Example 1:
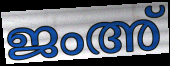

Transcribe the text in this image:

ജംഅ്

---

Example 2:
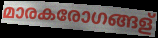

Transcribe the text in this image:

മാരകരോഗങ്ങള്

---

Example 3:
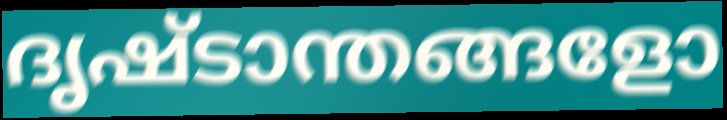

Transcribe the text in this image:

ദൃഷ്ടാന്തങ്ങളോ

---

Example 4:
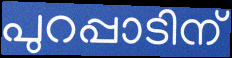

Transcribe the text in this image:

പുറപ്പാടിന്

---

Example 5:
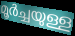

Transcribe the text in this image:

മൂർച്ചയുള്ള